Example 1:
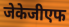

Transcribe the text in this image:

जेकेजीएफ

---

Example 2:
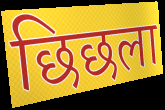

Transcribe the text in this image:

छिछला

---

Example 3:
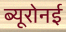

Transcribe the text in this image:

ब्यूरोनई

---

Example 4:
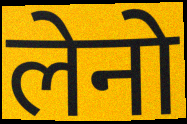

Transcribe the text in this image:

लेनो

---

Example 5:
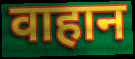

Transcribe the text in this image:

वाहान